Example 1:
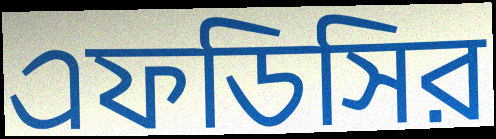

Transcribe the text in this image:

এফডিসির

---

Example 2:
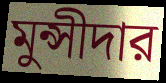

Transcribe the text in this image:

মুন্সীদার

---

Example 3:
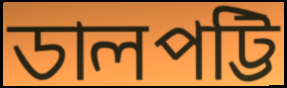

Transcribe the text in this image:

ডালপট্টি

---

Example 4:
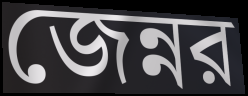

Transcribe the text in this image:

জেন্নর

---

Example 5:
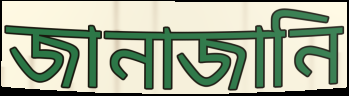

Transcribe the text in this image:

জানাজানি